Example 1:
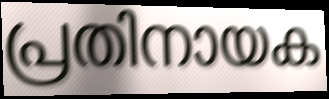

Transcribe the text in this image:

പ്രതിനായക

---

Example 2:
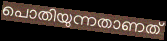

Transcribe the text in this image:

പൊതിയുന്നതാണത്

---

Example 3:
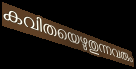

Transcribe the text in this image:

കവിതയെഴുതുന്നവരും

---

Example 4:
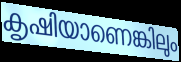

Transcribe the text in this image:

കൃഷിയാണെങ്കിലും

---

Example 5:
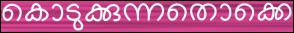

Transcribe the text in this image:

കൊടുക്കുന്നതൊക്കെ